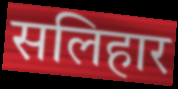
सलिहार